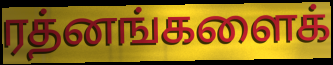
ரத்னங்களைக்